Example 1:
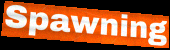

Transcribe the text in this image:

Spawning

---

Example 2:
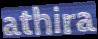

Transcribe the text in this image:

athira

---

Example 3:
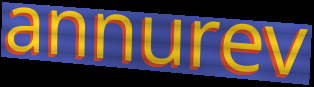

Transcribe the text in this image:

annurev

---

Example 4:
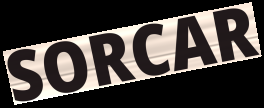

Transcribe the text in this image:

SORCAR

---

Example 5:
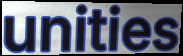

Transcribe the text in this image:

unities